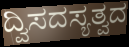
ದ್ವಿಸದಸ್ಯತ್ವದ